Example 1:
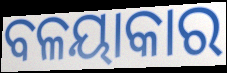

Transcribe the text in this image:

ବଳୟାକାର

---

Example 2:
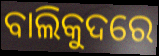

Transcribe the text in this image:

ବାଲିକୁଦରେ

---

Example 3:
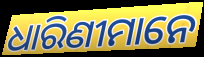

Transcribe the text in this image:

ଧାରିଣୀମାନେ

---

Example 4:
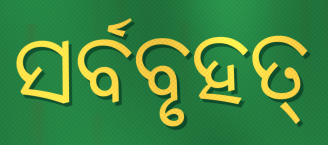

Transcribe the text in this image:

ସର୍ବବୃହତ୍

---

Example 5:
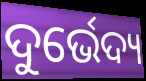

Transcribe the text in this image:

ଦୁର୍ଭେଦ୍ୟ